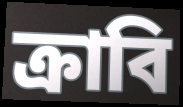
ক্রাবি